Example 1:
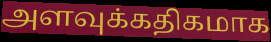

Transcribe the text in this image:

அளவுக்கதிகமாக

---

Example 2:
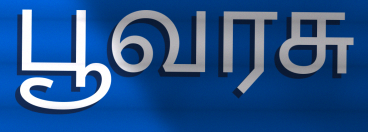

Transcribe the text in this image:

பூவரசு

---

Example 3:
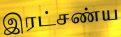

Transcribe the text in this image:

இரட்சண்ய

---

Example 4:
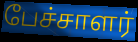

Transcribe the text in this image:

பேச்சாளர்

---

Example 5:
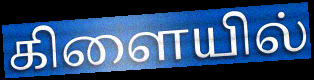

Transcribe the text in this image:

கிளையில்